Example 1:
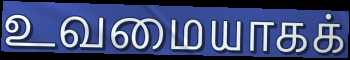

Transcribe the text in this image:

உவமையாகக்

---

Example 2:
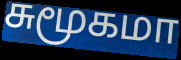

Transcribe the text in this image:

சுமூகமா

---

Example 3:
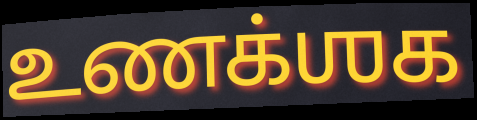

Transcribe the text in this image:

உணக்ஶக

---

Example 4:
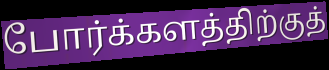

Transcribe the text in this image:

போர்க்களத்திற்குத்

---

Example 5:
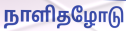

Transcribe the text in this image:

நாளிதழோடு